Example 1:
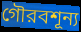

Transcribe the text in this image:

গৌরবশূন্য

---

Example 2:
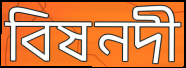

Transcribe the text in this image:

বিষনদী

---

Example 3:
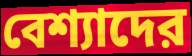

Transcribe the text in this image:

বেশ্যাদের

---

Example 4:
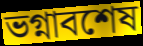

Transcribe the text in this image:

ভগ্নাবশেষ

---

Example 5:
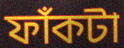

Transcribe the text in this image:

ফাঁকটা